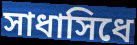
সাধাসিধে